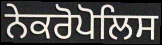
ਨੇਕਰੋਪੋਲਿਸ